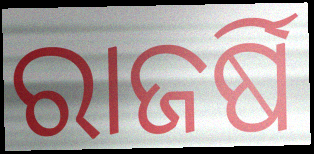
ରାଜର୍ଷି